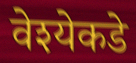
वेश्येकडे